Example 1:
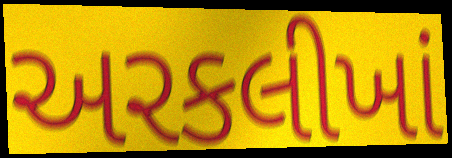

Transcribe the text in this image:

અરકલીખાં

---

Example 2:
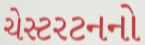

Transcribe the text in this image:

ચેસ્ટરટનનો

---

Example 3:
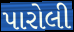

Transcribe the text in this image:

પારોલી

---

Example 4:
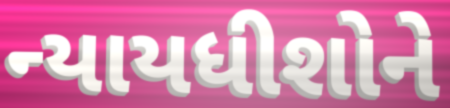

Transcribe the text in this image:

ન્યાયધીશોને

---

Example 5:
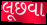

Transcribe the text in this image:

લૂછવા